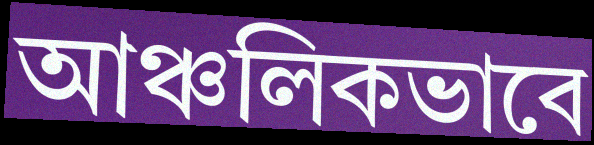
আঞ্চলিকভাবে